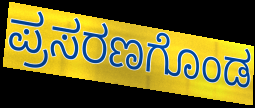
ಪ್ರಸರಣಗೊಂಡ